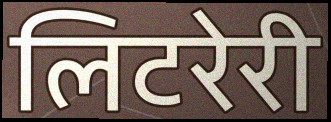
लिटरेरी